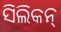
ସିଲିକନ୍